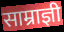
साम्राज्ञी